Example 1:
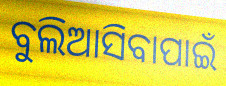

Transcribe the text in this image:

ବୁଲିଆସିବାପାଇଁ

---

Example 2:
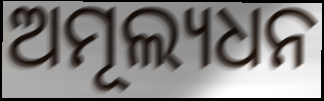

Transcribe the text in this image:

ଅମୂଲ୍ୟଧନ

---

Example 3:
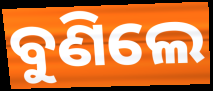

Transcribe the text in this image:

ବୁଣିଲେ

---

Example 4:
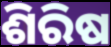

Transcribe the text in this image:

ଶିରିଷ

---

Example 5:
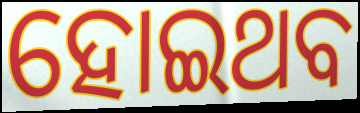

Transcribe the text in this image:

ହୋଇଥବ